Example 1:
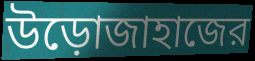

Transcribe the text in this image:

উড়োজাহাজের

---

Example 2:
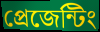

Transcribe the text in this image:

প্রেজেন্টিং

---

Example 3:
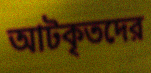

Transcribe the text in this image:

আটকৃতদের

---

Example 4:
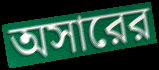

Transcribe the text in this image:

অসারের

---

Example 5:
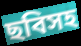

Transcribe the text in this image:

ছবিসহ